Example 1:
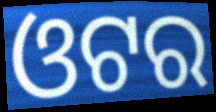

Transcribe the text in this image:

ଓଟର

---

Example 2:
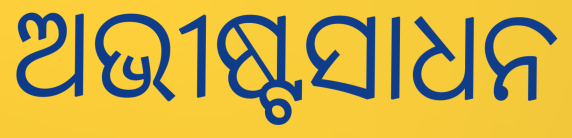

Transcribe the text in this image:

ଅଭୀଷ୍ଟସାଧନ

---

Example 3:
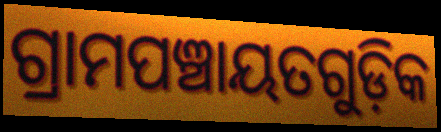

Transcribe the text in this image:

ଗ୍ରାମପଞ୍ଚାୟତଗୁଡ଼ିକ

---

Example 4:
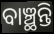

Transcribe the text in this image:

ବାଞ୍ଛନ୍ତି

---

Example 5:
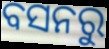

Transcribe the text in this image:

ବସନରୁ